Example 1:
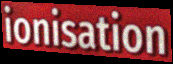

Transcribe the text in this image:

ionisation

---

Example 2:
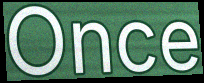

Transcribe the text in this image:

Once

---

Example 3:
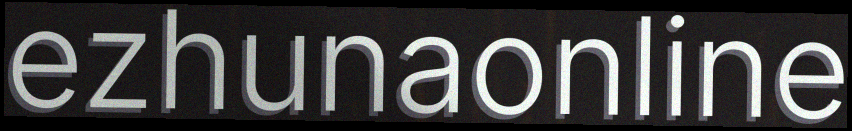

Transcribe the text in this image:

ezhunaonline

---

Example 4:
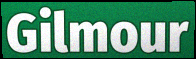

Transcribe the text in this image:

Gilmour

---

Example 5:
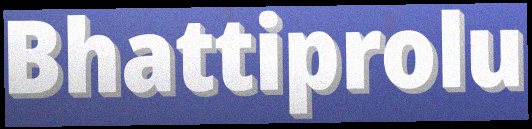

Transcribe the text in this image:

Bhattiprolu